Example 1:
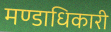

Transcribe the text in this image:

मण्डाधिकारी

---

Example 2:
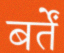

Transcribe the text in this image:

बर्तें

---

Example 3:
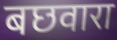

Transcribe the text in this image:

बछवारा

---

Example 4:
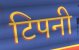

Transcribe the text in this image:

टिपनी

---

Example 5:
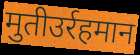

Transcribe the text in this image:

मुतीउर्रहमान